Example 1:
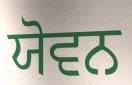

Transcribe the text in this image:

ਯੋਵਨ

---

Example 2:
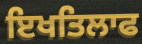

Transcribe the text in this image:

ਇਖਤਿਲਾਫ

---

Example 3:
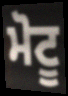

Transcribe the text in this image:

ਮੋਟੂ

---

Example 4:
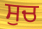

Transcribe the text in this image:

ਸੁਚ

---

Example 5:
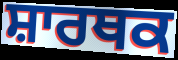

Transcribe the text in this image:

ਸ਼ਾਰਥਕ